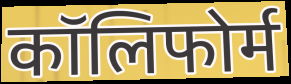
कॉलिफोर्म